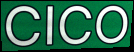
CICO